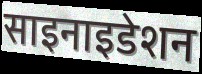
साइनाइडेशन